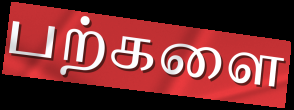
பற்களை